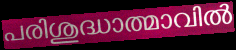
പരിശുദ്ധാത്മാവിൽ